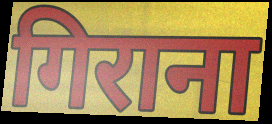
गिराना